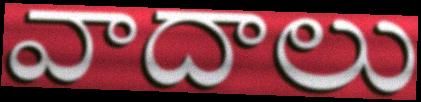
వాదాలు